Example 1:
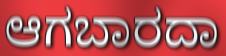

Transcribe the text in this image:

ಆಗಬಾರದಾ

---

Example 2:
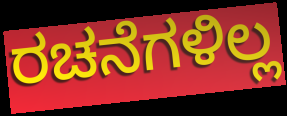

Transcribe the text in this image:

ರಚನೆಗಳಿಲ್ಲ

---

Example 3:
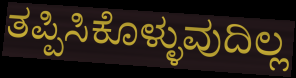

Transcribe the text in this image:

ತಪ್ಪಿಸಿಕೊಳ್ಳುವುದಿಲ್ಲ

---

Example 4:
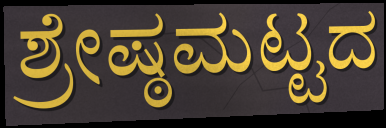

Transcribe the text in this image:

ಶ್ರೇಷ್ಠಮಟ್ಟದ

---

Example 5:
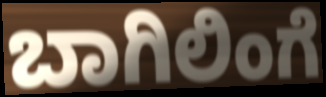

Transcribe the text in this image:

ಬಾಗಿಲಿಂಗೆ